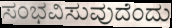
ಸಂಭವಿಸುವುದೆಂದು